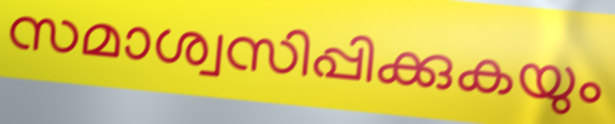
സമാശ്വസിപ്പിക്കുകയും